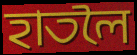
হাতলৈ